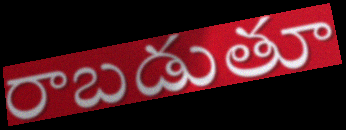
రాబడుతూ